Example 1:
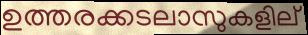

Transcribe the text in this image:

ഉത്തരക്കടലാസുകളില്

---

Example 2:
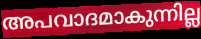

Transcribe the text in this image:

അപവാദമാകുന്നില്ല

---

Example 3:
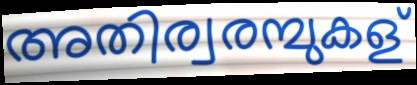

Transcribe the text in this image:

അതിര്വരമ്പുകള്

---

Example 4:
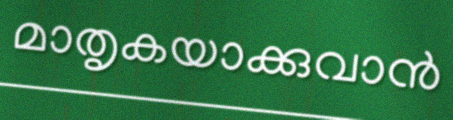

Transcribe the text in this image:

മാതൃകയാക്കുവാൻ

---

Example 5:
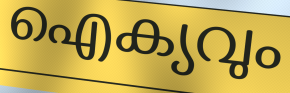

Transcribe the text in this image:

ഐക്യവും